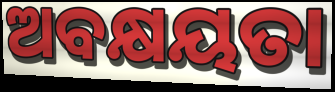
ଅବକ୍ଷୟତା